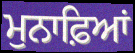
ਮੁਨਾਫ਼ਿਆਂ